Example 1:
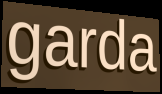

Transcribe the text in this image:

garda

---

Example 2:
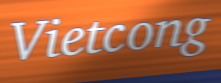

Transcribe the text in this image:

Vietcong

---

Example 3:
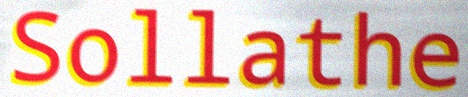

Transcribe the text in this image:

Sollathe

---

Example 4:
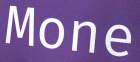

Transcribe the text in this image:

Mone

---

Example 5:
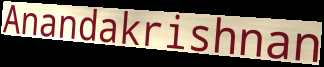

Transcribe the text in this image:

Anandakrishnan